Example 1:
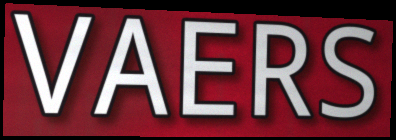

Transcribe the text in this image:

VAERS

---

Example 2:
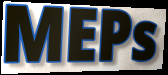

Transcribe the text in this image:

MEPs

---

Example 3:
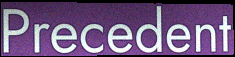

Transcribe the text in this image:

Precedent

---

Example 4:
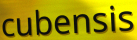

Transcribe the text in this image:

cubensis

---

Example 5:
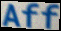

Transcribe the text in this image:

Aff